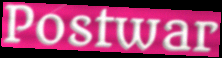
Postwar